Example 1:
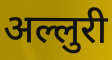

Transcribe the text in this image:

अल्लुरी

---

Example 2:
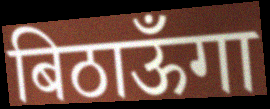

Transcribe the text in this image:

बिठाऊँगा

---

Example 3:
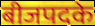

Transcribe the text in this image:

बीजपदके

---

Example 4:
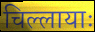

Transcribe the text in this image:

चिल्लायाः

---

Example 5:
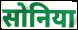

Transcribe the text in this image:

सोनिया